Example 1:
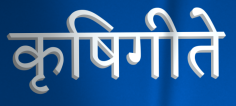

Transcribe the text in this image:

कृषिगीते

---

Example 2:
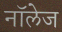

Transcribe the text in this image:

नॉलेज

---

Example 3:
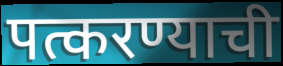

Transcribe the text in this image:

पत्करण्याची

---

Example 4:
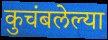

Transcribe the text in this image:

कुचंबलेल्या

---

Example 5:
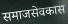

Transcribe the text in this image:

समाजसेवकास